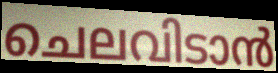
ചെലവിടാൻ